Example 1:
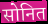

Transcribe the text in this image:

सोनित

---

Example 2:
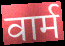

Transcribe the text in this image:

वार्म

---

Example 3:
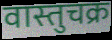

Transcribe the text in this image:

वास्तुचक्र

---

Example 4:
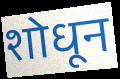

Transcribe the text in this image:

शोधून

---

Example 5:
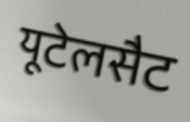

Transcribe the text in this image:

यूटेलसैट